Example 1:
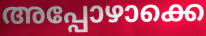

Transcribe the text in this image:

അപ്പോഴാക്കെ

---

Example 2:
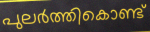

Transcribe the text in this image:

പുലർത്തികൊണ്ട്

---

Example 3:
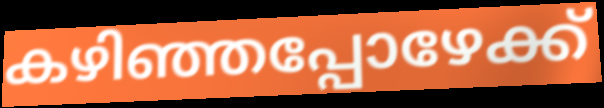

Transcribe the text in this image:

കഴിഞ്ഞപ്പോഴേക്ക്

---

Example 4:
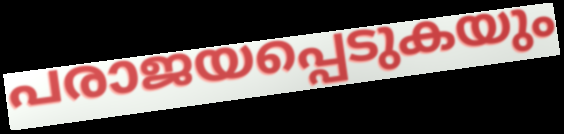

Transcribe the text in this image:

പരാജയപ്പെടുകയും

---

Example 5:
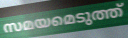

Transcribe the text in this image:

സമയമെടുത്ത്